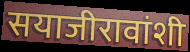
सयाजीरावांशी